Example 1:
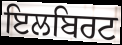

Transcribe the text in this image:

ਇਲਬਿਰਟ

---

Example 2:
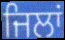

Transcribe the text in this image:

ਜਿਲਾਂ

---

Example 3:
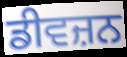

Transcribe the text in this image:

ਡੀਵਜ਼ਨ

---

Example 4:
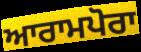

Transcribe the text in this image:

ਆਰਾਮਪੋਰਾ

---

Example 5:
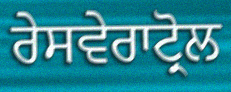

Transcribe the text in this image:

ਰੇਸਵੇਰਾਟ੍ਰੋਲ